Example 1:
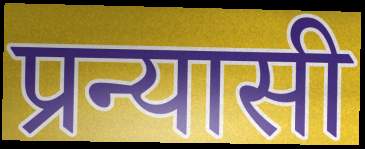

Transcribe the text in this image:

प्रन्यासी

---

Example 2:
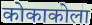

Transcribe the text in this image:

कोकाकोला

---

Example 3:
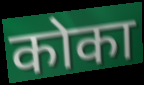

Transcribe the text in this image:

कोका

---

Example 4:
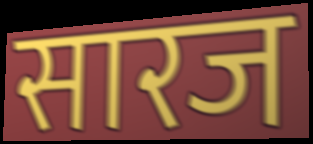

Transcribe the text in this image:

सारज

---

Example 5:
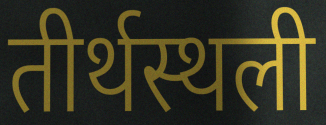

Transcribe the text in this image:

तीर्थस्थली